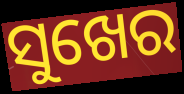
ସୁଖେର